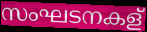
സംഘടനകള്